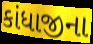
કાંધાજીના